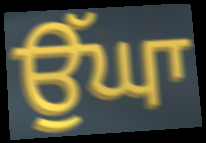
ਉੱਘਾ